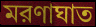
মরণাঘাত